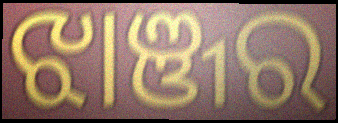
ଝାଞ୍ଜର